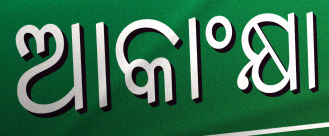
ଆକାଂକ୍ଷା